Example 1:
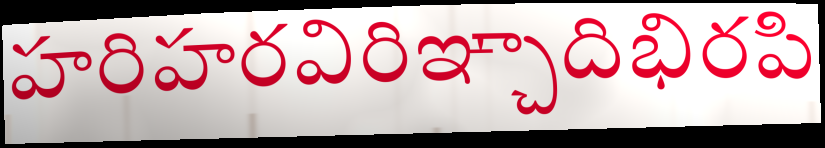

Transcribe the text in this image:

హరిహరవిరిఞ్చాదిభిరపి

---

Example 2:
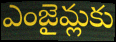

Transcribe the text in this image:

ఎంజైమ్లకు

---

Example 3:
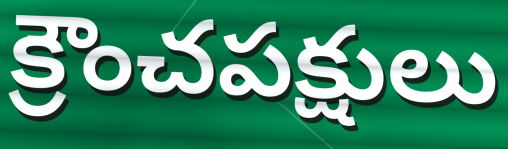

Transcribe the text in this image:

క్రౌంచపక్షులు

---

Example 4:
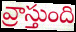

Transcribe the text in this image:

వ్రాస్తుంది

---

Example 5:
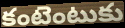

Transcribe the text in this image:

కంటెంటుకు